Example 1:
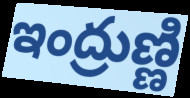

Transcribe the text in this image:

ఇంద్రుణ్ణి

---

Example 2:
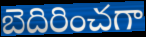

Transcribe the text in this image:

బెదిరించగా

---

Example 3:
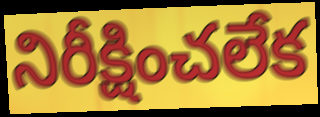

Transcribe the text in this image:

నిరీక్షించలేక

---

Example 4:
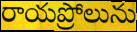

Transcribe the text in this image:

రాయప్రోలును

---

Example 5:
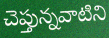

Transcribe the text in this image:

చెప్తున్నవాటిని